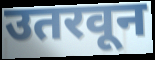
उतरवून